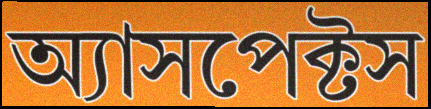
অ্যাসপেক্টস